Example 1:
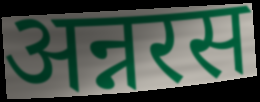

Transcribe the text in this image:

अन्नरस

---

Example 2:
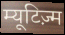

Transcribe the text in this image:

म्यूटिज़्म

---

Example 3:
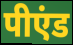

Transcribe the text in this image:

पीएंड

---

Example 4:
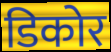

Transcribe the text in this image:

डिकोर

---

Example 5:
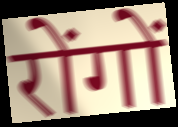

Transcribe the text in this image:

रोंगों